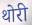
थोरी